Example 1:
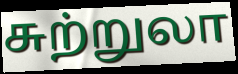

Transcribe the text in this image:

சுற்றுலா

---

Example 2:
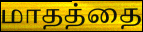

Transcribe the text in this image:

மாதத்தை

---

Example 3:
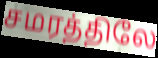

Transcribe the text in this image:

சமரத்திலே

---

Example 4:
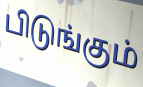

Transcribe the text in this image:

பிடுங்கும்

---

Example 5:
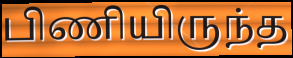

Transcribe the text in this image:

பிணியிருந்த